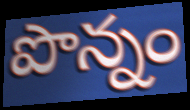
పొన్నం